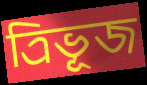
ত্ৰিভূজ